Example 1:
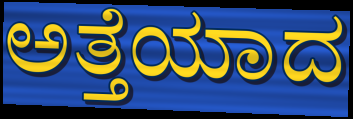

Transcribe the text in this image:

ಅತ್ತೆಯಾದ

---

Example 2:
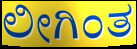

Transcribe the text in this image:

ಲೀಗಿಂತ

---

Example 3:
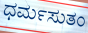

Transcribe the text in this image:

ಧರ್ಮಸುತಂ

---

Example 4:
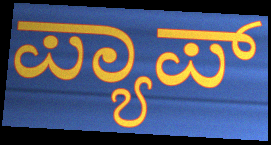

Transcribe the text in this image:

ಪ್ಯಾಪ್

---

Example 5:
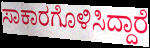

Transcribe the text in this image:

ಸಾಕಾರಗೊಳಿಸಿದ್ದಾರೆ